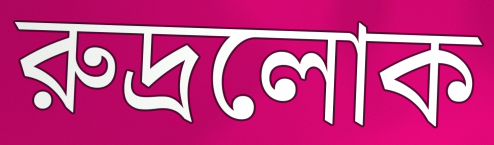
রুদ্রলোক